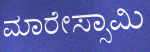
ಮಾರೇಸ್ಸಾಮಿ